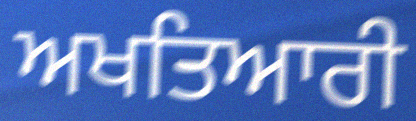
ਅਖਤਿਆਰੀ